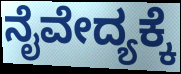
ನೈವೇದ್ಯಕ್ಕೆ